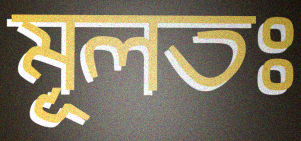
মূলতঃ